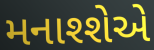
મનાશ્શેએ